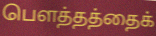
பௌத்தத்தைக்